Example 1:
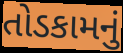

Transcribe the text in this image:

તોડકામનું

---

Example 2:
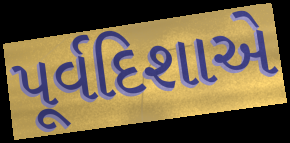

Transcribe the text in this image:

પૂર્વદિશાએ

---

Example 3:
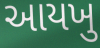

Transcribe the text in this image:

આયખુ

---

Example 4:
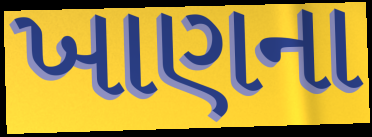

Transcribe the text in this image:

ખાણના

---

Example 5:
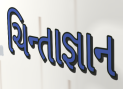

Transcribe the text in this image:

ચિન્તાજ્ઞાન